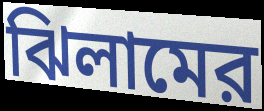
ঝিলামের